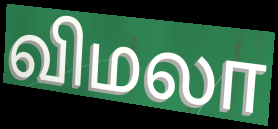
விமலா